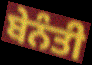
ਬੇਨੰਤੀ